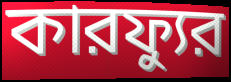
কারফ্যুর